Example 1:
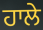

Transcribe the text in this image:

ਹਾਲੇ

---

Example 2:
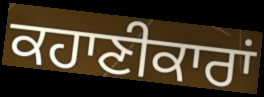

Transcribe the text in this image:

ਕਹਾਣੀਕਾਰਾਂ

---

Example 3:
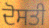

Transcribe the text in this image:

ਦੋਸਤੀ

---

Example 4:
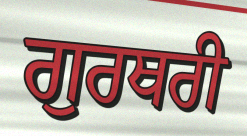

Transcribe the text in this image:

ਗੁਰਥਰੀ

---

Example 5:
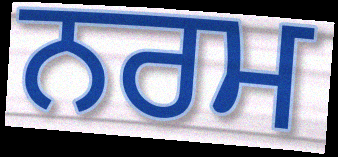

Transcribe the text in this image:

ਨਰਮ